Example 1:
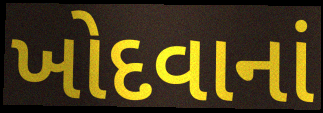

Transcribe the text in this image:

ખોદવાનાં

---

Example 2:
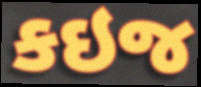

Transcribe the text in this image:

કઇજ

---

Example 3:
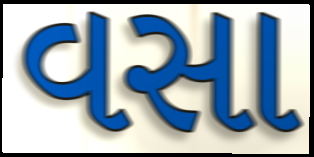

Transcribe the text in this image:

વસા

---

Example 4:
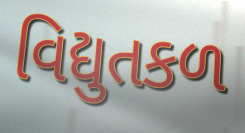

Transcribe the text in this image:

વિદ્યુતકળ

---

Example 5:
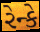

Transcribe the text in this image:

રેન્કે